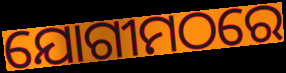
ଯୋଗୀମଠରେ